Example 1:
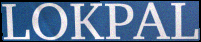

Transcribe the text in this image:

LOKPAL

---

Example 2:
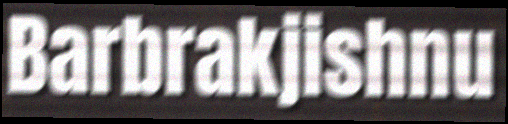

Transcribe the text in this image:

Barbrakjishnu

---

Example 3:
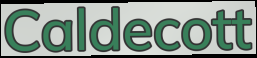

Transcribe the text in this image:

Caldecott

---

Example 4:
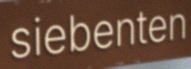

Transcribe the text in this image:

siebenten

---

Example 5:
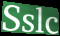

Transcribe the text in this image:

Sslc